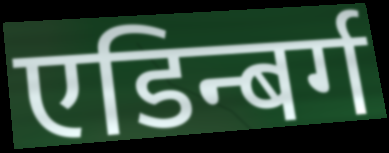
एडिन्बर्ग